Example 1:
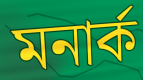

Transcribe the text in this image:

মনার্ক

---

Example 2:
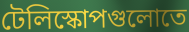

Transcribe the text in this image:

টেলিস্কোপগুলোতে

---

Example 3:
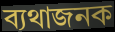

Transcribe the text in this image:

ব্যথাজনক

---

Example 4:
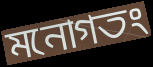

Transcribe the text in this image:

মনোগতং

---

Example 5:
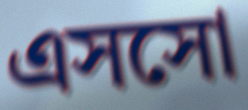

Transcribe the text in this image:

এসসো